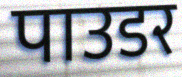
पाउडर